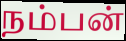
நம்பன்